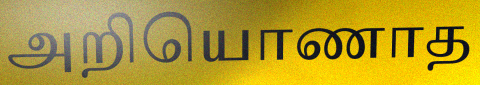
அறியொணாத